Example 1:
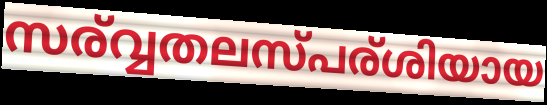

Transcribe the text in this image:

സര്വ്വതലസ്പര്ശിയായ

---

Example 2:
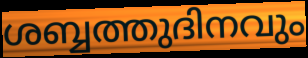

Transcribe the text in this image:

ശബ്ബത്തുദിനവും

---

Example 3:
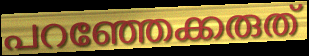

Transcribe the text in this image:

പറഞ്ഞേക്കരുത്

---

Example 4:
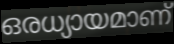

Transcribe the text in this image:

ഒരധ്യായമാണ്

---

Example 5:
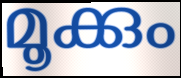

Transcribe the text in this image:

മൂക്കും